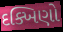
દક્ખિણો